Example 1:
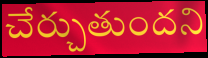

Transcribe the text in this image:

చేర్చుతుందని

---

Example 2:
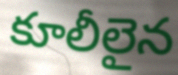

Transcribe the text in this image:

కూలీలైన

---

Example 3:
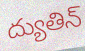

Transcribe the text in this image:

ద్యుతిన్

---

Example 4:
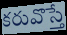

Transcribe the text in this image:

కరువొస్తే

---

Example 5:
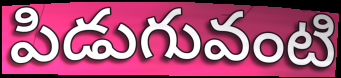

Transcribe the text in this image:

పిడుగువంటి